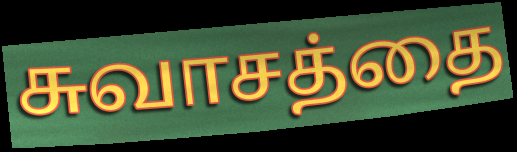
சுவாசத்தை